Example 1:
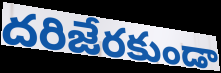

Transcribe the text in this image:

దరిజేరకుండా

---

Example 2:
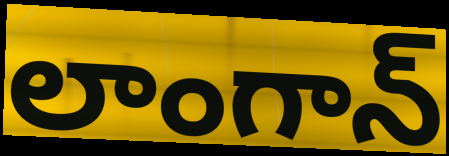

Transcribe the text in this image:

లాంగాన్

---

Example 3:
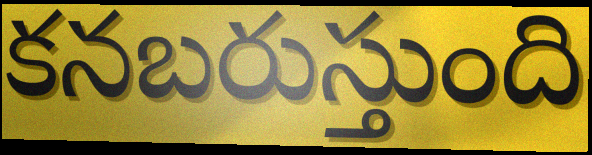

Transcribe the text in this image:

కనబరుస్తుంది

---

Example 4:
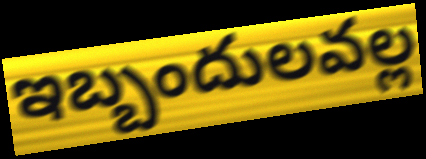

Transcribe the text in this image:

ఇబ్బందులవల్ల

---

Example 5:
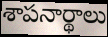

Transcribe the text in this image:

శాపనార్థాలు